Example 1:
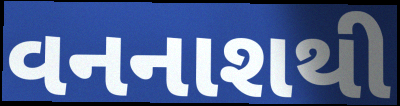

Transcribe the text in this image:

વનનાશથી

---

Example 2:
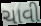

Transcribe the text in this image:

ચાવી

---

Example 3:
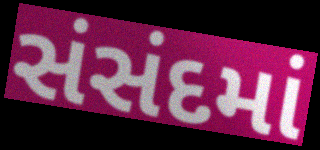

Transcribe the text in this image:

સંસંદમાં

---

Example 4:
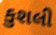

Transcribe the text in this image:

કુશલી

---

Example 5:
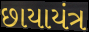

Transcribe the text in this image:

છાયાયંત્ર